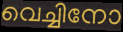
വെച്ചിനോ